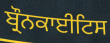
ਬ੍ਰੌਨਕਾਈਟਿਸ